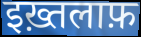
इख़्तलाफ़